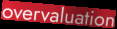
overvaluation